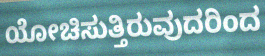
ಯೋಚಿಸುತ್ತಿರುವುದರಿಂದ